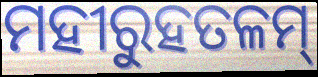
ମହୀରୁହତଳମ୍